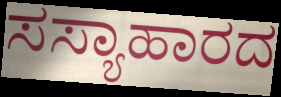
ಸಸ್ಯಾಹಾರದ